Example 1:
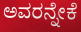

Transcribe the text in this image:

ಅವರನ್ನೇಕೆ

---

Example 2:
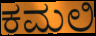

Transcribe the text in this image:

ಕಮಲಿ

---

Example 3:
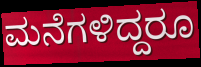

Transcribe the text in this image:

ಮನೆಗಳಿದ್ದರೂ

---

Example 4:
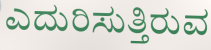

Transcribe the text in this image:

ಎದುರಿಸುತ್ತಿರುವ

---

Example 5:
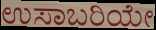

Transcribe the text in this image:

ಉಸಾಬರಿಯೇ